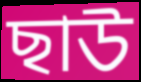
ছাউ